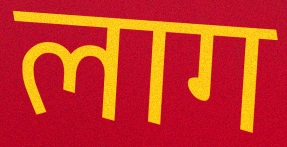
लाग